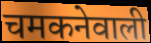
चमकनेवाली